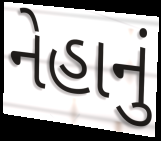
નેહાનું